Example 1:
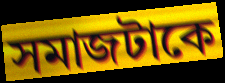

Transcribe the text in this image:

সমাজটাকে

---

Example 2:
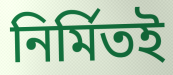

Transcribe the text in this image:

নির্মিতই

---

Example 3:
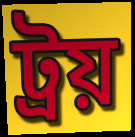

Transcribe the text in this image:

ট্রয়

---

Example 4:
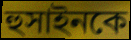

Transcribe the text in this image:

হুসাইনকে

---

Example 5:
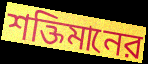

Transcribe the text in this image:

শক্তিমানের